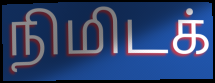
நிமிடக்